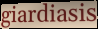
giardiasis